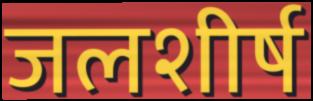
जलशीर्ष